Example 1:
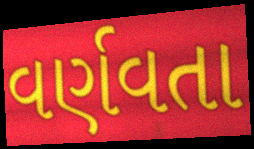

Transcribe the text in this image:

વર્ણવતા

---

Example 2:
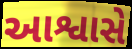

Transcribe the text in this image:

આશ્વાસે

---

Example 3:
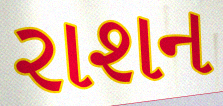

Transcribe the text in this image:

રાશન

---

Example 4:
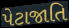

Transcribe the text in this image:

પેટાજાતિ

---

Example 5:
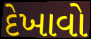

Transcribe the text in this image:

દેખાવો